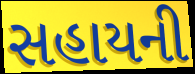
સહાયની